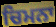
ਚਿਮਨਾ